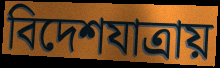
বিদেশযাত্রায়